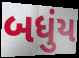
બધુંય